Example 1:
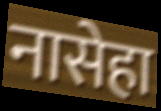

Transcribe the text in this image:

नासेहा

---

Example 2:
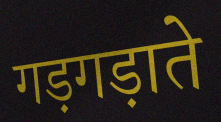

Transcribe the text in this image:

गड़गड़ाते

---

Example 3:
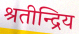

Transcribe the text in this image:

श्रतीन्द्रिय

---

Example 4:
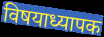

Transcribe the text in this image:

विषयाध्यापक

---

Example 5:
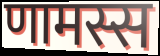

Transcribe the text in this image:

णामस्स